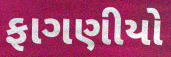
ફાગણીયો